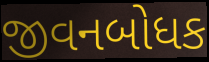
જીવનબોધક